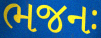
ભજનઃ